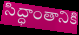
సిద్ధాంతానికి